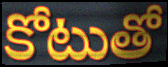
కోటుతో